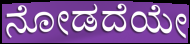
ನೋಡದೆಯೇ